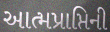
આત્મપ્રાપ્તિની